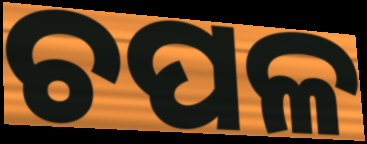
ଚପଳ